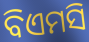
ବିଏମସି